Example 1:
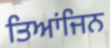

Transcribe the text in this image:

ਤਿਆਂਜਿਨ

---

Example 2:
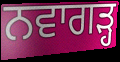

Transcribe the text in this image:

ਨਵਾਗੜ੍ਹ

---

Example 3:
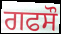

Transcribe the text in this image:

ਗਫਸੌ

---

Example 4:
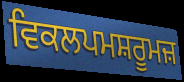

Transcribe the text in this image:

ਵਿਕਲਪਮਸ਼ਰੂਮਜ਼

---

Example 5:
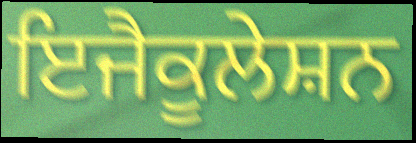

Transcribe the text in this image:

ਇਜੈਕੂਲੇਸ਼ਨ